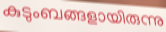
കുടുംബങ്ങളായിരുന്നു